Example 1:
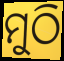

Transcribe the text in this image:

ମୁଠି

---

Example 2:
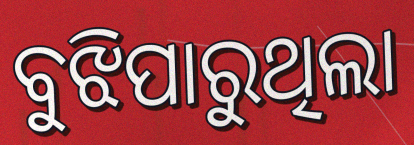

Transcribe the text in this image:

ବୁଝିପାରୁଥିଲା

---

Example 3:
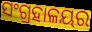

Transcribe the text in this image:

ସଂଗ୍ରହାଳୟର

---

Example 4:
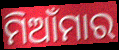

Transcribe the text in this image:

ମିଆଁମାର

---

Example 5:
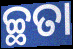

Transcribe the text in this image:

ଚ୍ଛତା